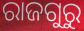
ରାଜଗୁରୁ